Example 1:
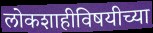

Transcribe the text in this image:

लोकशाहीविषयीच्या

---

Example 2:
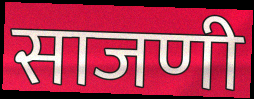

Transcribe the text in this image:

साजणी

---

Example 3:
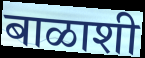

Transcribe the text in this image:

बाळाशी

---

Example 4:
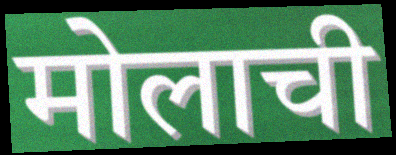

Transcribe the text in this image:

मोलाची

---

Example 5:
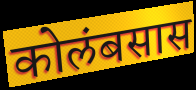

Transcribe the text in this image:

कोलंबसास